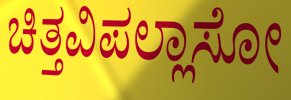
ಚಿತ್ತವಿಪಲ್ಲಾಸೋ